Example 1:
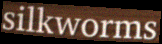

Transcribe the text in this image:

silkworms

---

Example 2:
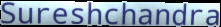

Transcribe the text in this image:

Sureshchandra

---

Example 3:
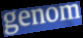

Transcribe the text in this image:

genom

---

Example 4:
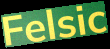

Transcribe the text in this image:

Felsic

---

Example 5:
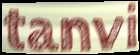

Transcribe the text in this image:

tanvi